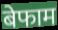
बेफाम